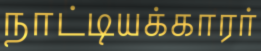
நாட்டியக்காரர்